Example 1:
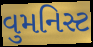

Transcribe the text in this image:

વુમનિસ્ટ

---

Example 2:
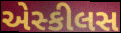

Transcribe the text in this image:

એસ્કીલસ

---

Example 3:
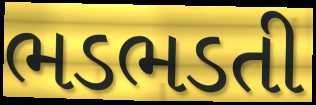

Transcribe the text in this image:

ભડભડતી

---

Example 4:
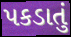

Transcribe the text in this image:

પકડાતું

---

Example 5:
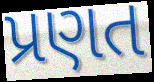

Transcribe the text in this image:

પ્રણત